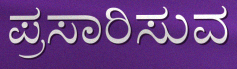
ಪ್ರಸಾರಿಸುವ